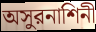
অসুরনাশিনী